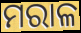
ମରାଳ